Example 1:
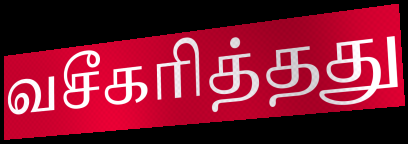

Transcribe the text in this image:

வசீகரித்தது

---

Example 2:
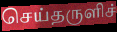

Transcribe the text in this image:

செய்தருளிச்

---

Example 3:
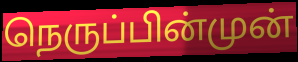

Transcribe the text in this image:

நெருப்பின்முன்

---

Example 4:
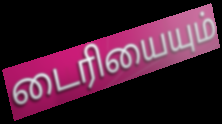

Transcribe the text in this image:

டைரியையும்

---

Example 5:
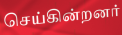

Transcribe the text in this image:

செய்கின்றனர்